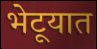
भेटूयात